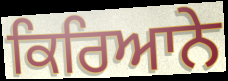
ਕਿਰਿਆਨੇ